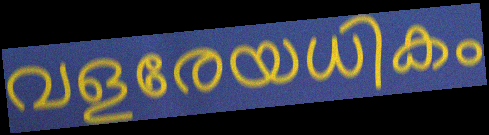
വളരേയധികം